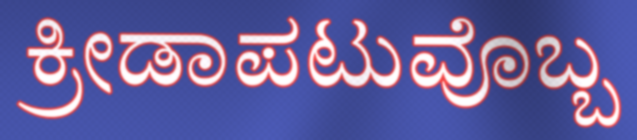
ಕ್ರೀಡಾಪಟುವೊಬ್ಬ